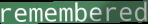
remembered